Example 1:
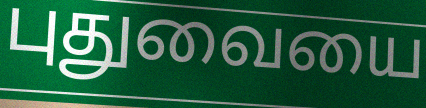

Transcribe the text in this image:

புதுவையை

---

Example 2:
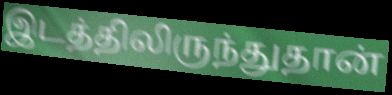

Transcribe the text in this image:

இடத்திலிருந்துதான்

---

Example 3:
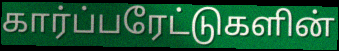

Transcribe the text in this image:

கார்ப்பரேட்டுகளின்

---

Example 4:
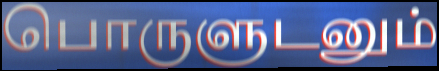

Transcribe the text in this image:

பொருளுடனும்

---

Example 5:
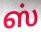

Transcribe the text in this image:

ஸ்